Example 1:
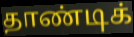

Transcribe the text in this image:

தாண்டிக்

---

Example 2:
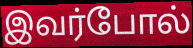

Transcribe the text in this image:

இவர்போல்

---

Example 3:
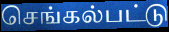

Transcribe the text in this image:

செங்கல்பட்டு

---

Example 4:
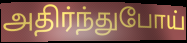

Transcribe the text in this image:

அதிர்ந்துபோய்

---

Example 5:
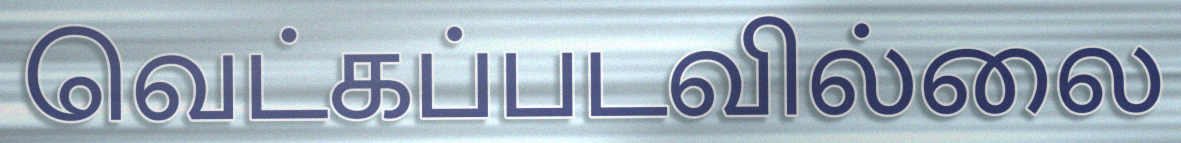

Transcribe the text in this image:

வெட்கப்படவில்லை